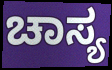
ಚಾಸ್ಯ